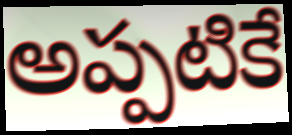
అప్పటికే